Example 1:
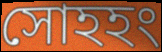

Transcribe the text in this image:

সোহহং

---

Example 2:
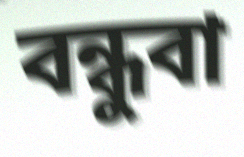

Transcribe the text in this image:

বন্ধুবা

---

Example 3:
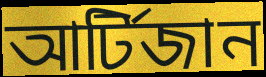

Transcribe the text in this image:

আর্টিজান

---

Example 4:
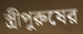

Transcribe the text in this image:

স্ত্রীপুরুষের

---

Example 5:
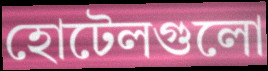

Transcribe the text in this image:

হোটেলগুলো